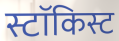
स्टॉकिस्ट